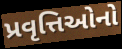
પ્રવૃત્તિઓનો